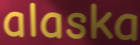
alaska